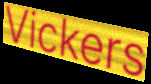
Vickers